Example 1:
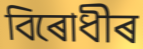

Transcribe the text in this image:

বিৰোধীৰ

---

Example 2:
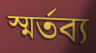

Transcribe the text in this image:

স্মৰ্তব্য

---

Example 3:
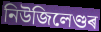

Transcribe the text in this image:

নিউজিলেণ্ডৰ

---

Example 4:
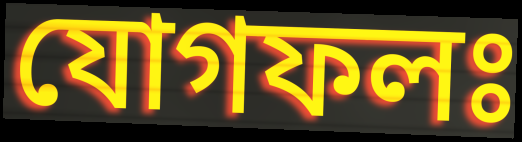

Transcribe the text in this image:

যোগফলঃ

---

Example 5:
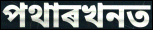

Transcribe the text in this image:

পথাৰখনত